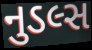
નુડલ્સ